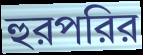
হুরপরির